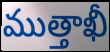
ముత్తాఖీ